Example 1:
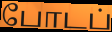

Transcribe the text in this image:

போடப்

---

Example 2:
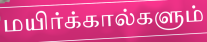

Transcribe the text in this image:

மயிர்க்கால்களும்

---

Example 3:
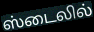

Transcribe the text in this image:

ஸ்டைலில்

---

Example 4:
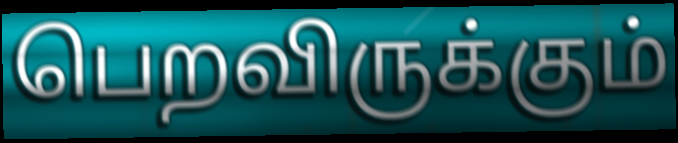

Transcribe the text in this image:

பெறவிருக்கும்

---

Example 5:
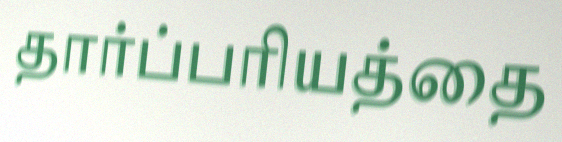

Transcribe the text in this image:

தார்ப்பரியத்தை